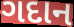
ગદાન